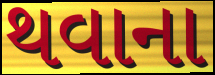
થવાના